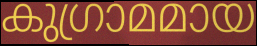
കുഗ്രാമമായ